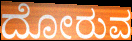
ದೋರುವ